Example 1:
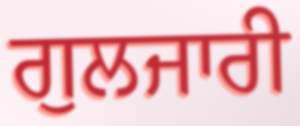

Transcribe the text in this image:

ਗੁਲਜਾਰੀ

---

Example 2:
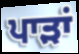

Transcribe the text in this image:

ਪਾੜਾਂ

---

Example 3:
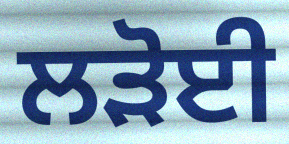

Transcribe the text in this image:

ਲੜੋਈ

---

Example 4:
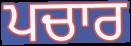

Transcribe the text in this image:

ਪਚਾਰ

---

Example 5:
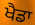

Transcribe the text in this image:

ਖੈਡਾ